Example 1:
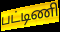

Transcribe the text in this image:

பட்டிணி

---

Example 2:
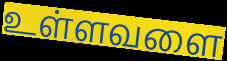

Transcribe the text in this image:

உள்ளவளை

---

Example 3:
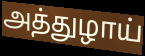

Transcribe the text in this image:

அத்துழாய்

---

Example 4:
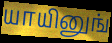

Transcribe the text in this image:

யாயினுங்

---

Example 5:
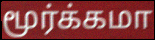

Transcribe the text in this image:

மூர்க்கமா